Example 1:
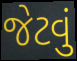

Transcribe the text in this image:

જેટવું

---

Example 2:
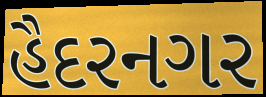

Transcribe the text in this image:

હૈદરનગર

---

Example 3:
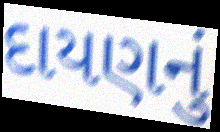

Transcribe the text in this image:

દાયણનું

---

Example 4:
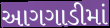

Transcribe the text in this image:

આગગાડીમાં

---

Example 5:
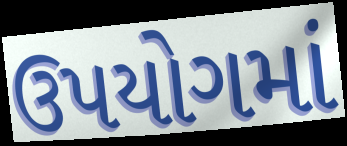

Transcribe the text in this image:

ઉપયોગમાં